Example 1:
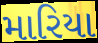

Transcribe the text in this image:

મારિયા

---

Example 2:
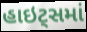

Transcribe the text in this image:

હાઇટ્સમાં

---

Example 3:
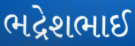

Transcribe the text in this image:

ભદ્રેશભાઈ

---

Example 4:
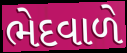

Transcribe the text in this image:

ભેદવાળે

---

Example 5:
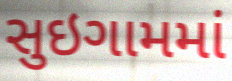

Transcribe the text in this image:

સુઇગામમાં